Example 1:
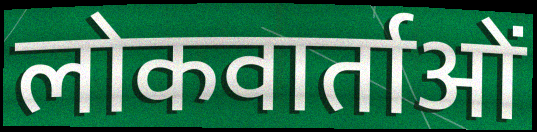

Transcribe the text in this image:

लोकवार्ताओं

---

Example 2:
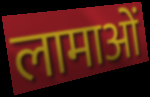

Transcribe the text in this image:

लामाओं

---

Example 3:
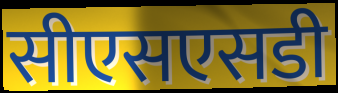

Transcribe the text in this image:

सीएसएसडी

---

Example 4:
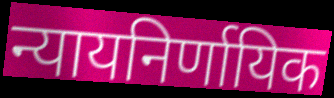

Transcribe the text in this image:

न्यायनिर्णायिक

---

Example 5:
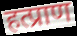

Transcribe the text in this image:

हत्प्राण